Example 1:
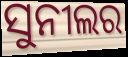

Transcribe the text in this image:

ସୁନୀଲର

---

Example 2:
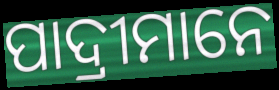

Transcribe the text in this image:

ପାଦ୍ରୀମାନେ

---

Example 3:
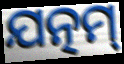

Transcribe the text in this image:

ଯତ୍ନମ୍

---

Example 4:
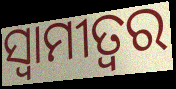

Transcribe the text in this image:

ସ୍ଵାମୀତ୍ୱର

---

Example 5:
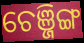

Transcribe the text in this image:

ଚେଞ୍ଜିଙ୍ଗ